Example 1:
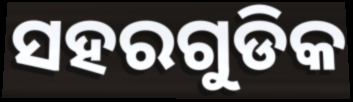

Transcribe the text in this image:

ସହରଗୁଡିକ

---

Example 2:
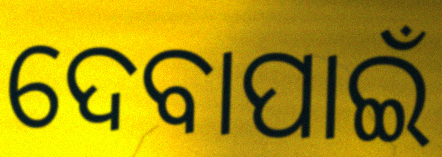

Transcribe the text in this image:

ଦେବାପାଇଁ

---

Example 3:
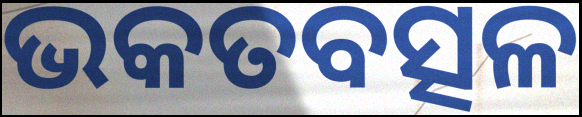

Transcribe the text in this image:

ଭକତବତ୍ସଳ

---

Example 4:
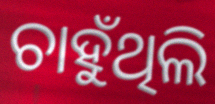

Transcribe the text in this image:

ଚାହୁଁଥିଲି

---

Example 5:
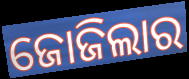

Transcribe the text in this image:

ଜୋଜିଲାର